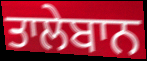
ਤਾਲੇਬਾਨ